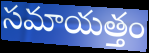
సమాయత్తం